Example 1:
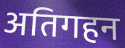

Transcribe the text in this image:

अतिगहन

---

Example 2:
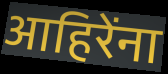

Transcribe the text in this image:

आहिरेंना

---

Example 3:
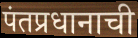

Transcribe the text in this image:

पंतप्रधानाची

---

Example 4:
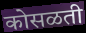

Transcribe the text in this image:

कोसळती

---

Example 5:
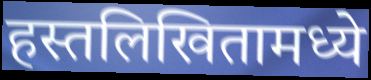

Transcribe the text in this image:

हस्तलिखितामध्ये